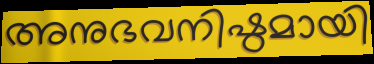
അനുഭവനിഷ്ഠമായി